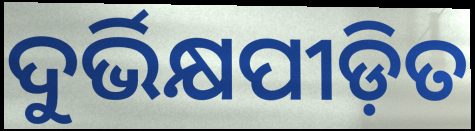
ଦୁର୍ଭିକ୍ଷପୀଡ଼ିତ